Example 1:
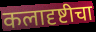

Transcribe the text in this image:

कलादृष्टीचा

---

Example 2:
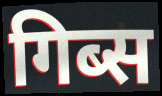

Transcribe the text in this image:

गिब्स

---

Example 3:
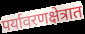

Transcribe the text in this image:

पर्यावरणक्षेत्रात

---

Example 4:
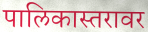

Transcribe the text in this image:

पालिकास्तरावर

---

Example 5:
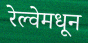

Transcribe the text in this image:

रेल्वेमधून